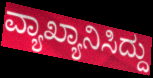
ವ್ಯಾಖ್ಯಾನಿಸಿದ್ದು